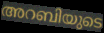
അറബിയുടെ